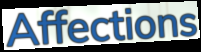
Affections